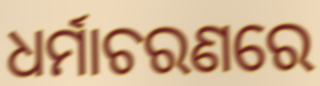
ଧର୍ମାଚରଣରେ